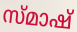
സ്മാഷ്